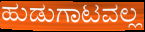
ಹುಡುಗಾಟವಲ್ಲ